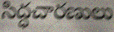
సిద్ధచారణులు